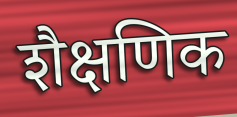
शैक्षणिक